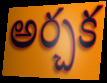
అర్చక